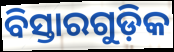
ବିସ୍ତାରଗୁଡ଼ିକ